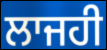
ਲਾਜਹੀ